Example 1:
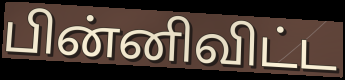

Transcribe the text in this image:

பின்னிவிட்ட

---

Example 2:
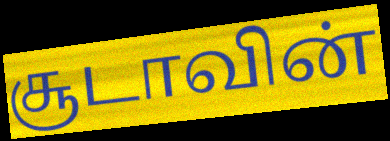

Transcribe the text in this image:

சூடாவின்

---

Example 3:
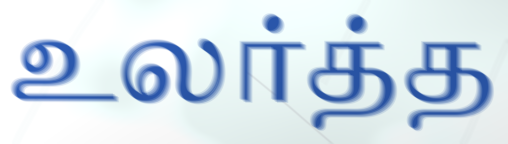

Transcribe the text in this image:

உலர்த்த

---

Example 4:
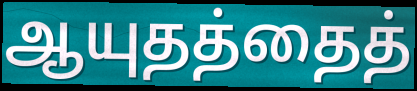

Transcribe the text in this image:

ஆயுதத்தைத்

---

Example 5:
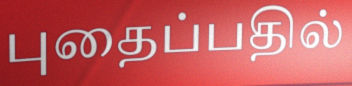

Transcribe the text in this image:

புதைப்பதில்